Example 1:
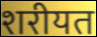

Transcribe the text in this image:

शरीयत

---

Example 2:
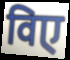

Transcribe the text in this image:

विए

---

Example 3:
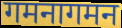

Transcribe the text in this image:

गमनागमन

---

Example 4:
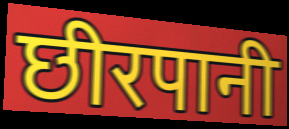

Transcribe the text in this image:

छीरपानी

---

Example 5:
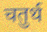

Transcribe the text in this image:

चतुर्थ